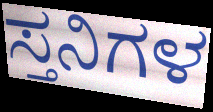
ಸ್ತನಿಗಳ